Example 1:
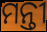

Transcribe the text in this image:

ମନ୍ତୀ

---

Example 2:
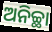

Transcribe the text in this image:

ଅନିଚ୍ଛା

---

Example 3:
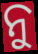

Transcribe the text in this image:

ନୁ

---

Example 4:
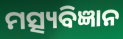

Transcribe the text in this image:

ମତ୍ସ୍ୟବିଜ୍ଞାନ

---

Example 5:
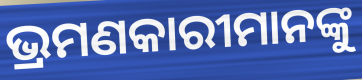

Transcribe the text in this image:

ଭ୍ରମଣକାରୀମାନଙ୍କୁ